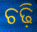
ଚଢ଼ି